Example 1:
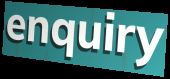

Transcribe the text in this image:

enquiry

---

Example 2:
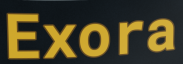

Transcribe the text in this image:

Exora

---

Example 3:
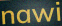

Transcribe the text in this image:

nawi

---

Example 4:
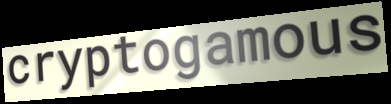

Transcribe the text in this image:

cryptogamous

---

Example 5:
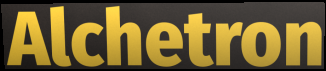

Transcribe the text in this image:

Alchetron